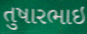
તુષારભાઇ